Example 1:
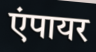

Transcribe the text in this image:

एंपायर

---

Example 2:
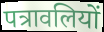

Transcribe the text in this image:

पत्रावलियों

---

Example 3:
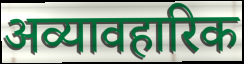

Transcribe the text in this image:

अव्यावहारिक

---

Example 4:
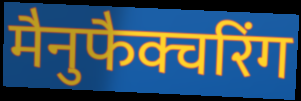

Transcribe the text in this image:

मैनुफैक्चरिंग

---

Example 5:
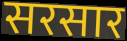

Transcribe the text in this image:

सरसार